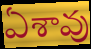
ఏశావు